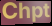
Chpt